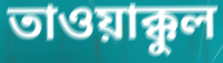
তাওয়াক্কুল